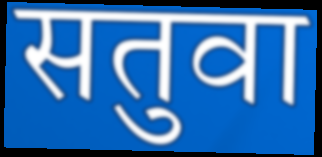
सतुवा